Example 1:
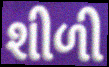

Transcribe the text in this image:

શીળી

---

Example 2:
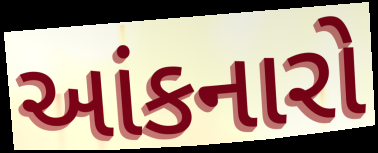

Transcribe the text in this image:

આંકનારો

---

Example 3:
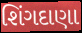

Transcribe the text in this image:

શિંગદાણા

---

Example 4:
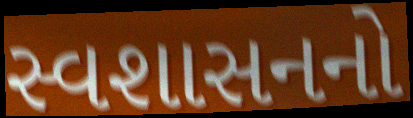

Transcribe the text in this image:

સ્વશાસનનો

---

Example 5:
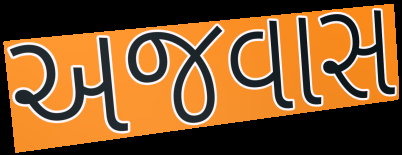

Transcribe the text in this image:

અજવાસ